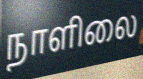
நாளிலை